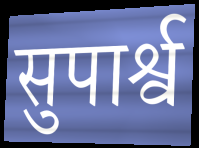
सुपार्श्व